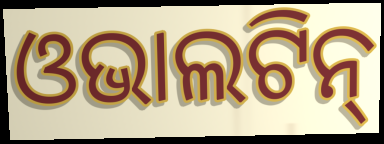
ଓଭାଲଟିନ୍